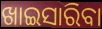
ଖାଇସାରିବା